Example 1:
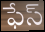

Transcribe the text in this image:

ఫేస్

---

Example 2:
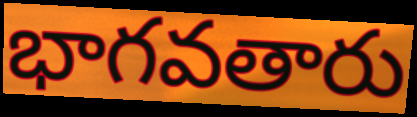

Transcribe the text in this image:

భాగవతారు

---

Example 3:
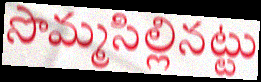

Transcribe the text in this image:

సొమ్మసిల్లినట్టు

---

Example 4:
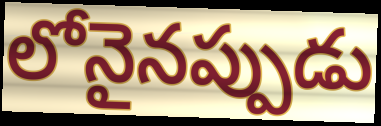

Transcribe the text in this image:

లోనైనప్పుడు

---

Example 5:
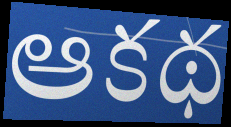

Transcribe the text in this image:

ఆకథ